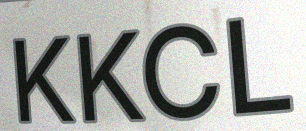
KKCL